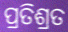
ପ୍ରତିଶ୍ରତ